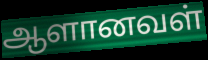
ஆளானவள்